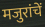
मजुरांचें